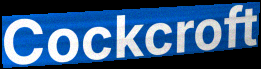
Cockcroft